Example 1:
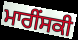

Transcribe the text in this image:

ਮਾਰੀੰਸਕੀ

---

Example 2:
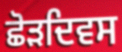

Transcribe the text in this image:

ਛੋੜਦਿਵਸ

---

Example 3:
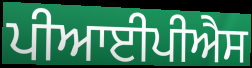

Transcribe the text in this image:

ਪੀਆਈਪੀਐਸ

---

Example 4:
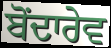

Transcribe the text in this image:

ਬੋਂਦਾਰੇਵ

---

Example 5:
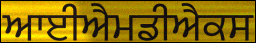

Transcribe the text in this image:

ਆਈਐਮਡੀਐਕਸ